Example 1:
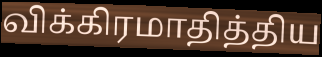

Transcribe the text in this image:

விக்கிரமாதித்திய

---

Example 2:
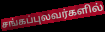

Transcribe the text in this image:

சங்கப்புலவர்களில்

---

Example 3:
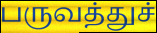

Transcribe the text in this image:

பருவத்துச்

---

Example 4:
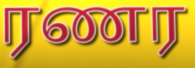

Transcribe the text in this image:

ரணர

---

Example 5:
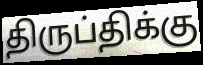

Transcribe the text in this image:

திருப்திக்கு